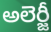
అలెర్జీ